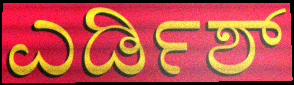
ಎರ್ಡಿಶ್